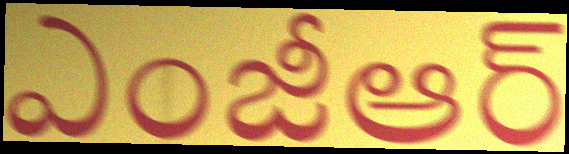
ఎంజీఆర్